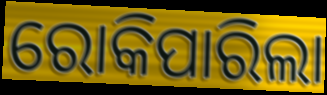
ରୋକିପାରିଲା